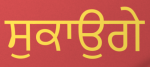
ਸੁਕਾਉਗੇ